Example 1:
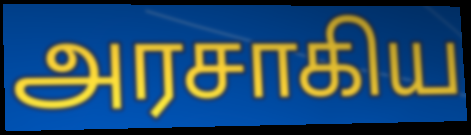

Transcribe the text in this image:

அரசாகிய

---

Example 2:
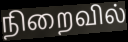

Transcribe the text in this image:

நிறைவில்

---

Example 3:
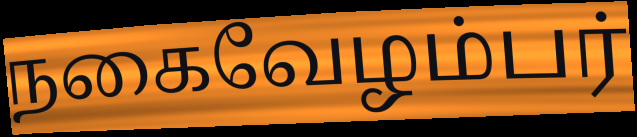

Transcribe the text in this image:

நகைவேழம்பர்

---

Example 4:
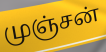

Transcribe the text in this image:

முஞ்சன்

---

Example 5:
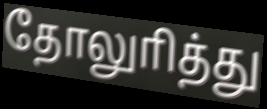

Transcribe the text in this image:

தோலுரித்து